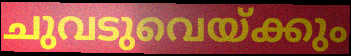
ചുവടുവെയ്ക്കും